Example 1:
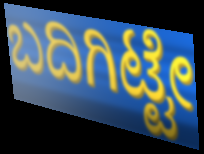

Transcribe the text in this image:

ಬದಿಗಿಟ್ಟೇ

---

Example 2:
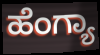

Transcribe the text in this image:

ಹೆಂಗ್ಯಾ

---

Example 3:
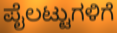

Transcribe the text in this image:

ಪೈಲಟ್ಟುಗಳಿಗೆ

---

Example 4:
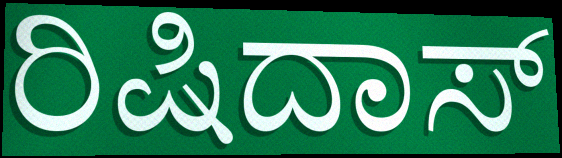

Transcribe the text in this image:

ರಿಷಿದಾಸ್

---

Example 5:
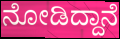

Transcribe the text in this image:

ನೋಡಿದ್ದಾನೆ